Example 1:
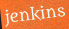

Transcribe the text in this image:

jenkins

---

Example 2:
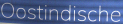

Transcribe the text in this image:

Oostindische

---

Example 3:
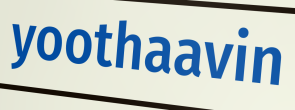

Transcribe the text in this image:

yoothaavin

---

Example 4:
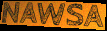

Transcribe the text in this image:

NAWSA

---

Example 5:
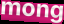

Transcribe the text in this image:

mong